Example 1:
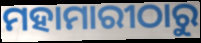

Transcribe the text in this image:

ମହାମାରୀଠାରୁ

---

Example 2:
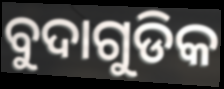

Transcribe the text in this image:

ବୁଦାଗୁଡିକ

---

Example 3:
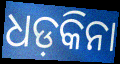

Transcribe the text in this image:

ଧଡ଼କିନା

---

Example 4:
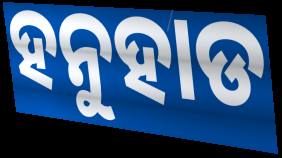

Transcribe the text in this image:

ହନୁହାଡ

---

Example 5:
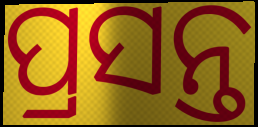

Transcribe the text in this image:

ପ୍ରସନ୍ତ